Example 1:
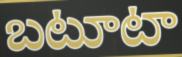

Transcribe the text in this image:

బటూటా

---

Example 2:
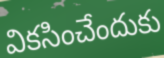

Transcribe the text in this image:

వికసించేందుకు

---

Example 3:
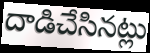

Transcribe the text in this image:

దాడిచేసినట్లు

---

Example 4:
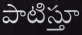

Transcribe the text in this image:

పాటిస్తూ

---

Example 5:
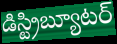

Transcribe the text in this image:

డిస్ట్రిబ్యూటర్